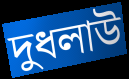
দুধলাউ